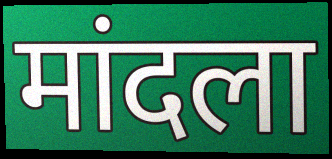
मांदला